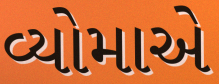
વ્યોમાએ